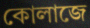
কোলাজে